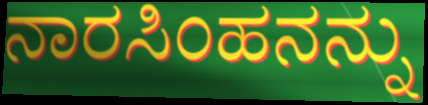
ನಾರಸಿಂಹನನ್ನು